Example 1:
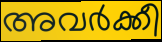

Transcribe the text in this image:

അവർക്കീ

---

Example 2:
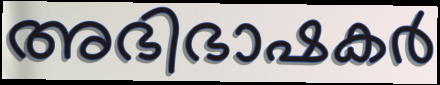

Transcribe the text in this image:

അഭിഭാഷകർ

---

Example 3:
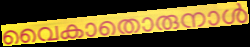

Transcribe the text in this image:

വൈകാതൊരുനാൾ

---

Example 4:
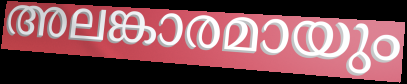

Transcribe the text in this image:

അലങ്കാരമായും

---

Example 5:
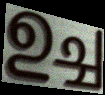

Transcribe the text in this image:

ഉച്ച